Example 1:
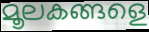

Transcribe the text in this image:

മൂലകങ്ങളെ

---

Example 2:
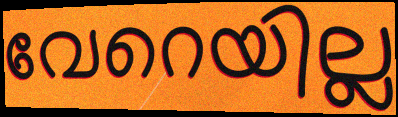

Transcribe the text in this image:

വേറെയില്ല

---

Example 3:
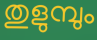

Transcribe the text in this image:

തുളുമ്പും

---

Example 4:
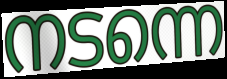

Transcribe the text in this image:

നടന്നെ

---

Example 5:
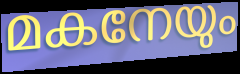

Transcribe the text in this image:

മകനേയും